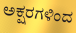
ಅಕ್ಷರಗಳಿಂದ